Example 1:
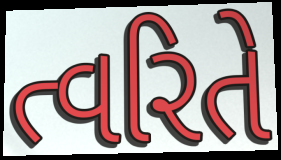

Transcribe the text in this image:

ત્વરિતે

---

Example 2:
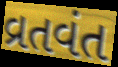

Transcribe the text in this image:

વ્રતવંત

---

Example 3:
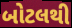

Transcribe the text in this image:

બોટલથી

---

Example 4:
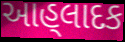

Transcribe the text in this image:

આહ્‌લાદક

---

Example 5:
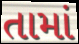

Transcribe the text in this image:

તામાં